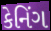
કેનિંગ